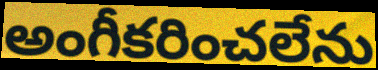
అంగీకరించలేను